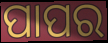
ପାପର